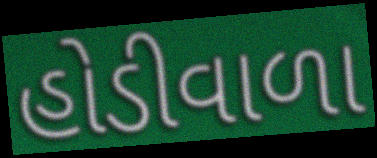
હોડીવાળા